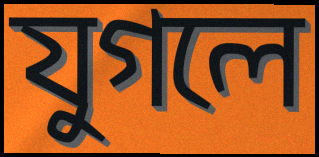
যুগলে